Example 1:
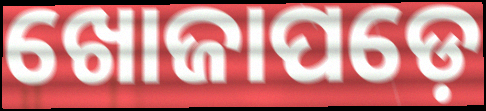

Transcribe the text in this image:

ଖୋଜାପଡ଼େ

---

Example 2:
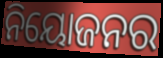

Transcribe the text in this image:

ନିୟୋଜନର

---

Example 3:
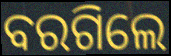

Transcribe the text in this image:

ବରଗିଲେ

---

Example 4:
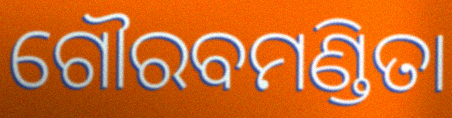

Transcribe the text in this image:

ଗୌରବମଣ୍ଡିତା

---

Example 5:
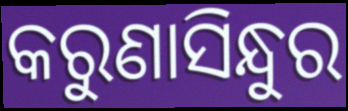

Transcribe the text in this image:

କରୁଣାସିନ୍ଧୁର